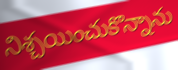
నిశ్చయించుకొన్నాను